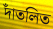
দাঁতলিত